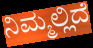
ನಿಮ್ಮಲ್ಲಿದೆ